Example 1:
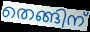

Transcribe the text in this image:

തെങ്ങിന്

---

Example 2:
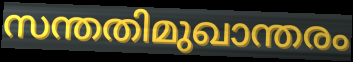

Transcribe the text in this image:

സന്തതിമുഖാന്തരം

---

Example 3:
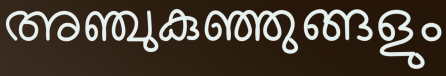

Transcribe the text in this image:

അഞ്ചുകുഞ്ഞുങ്ങളും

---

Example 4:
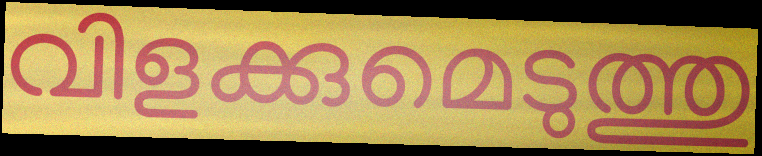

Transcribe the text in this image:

വിളക്കുമെടുത്തു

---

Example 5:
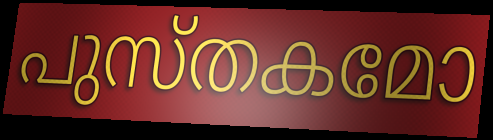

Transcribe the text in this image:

പുസ്തകമോ